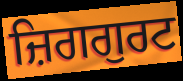
ਜ਼ਿਗਗੁਰਟ